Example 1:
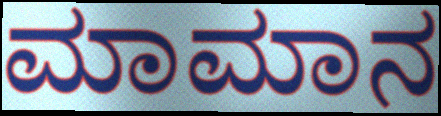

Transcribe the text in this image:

ಮಾಮಾನ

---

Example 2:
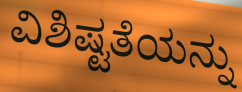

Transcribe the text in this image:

ವಿಶಿಷ್ಟತೆಯನ್ನು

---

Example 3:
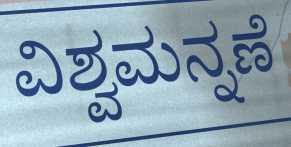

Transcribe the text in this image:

ವಿಶ್ವಮನ್ನಣೆ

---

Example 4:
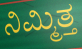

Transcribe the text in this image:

ನಿಮ್ಮಿತ್ತ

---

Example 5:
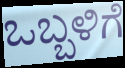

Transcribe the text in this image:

ಒಬ್ಬಳಿಗೆ